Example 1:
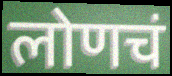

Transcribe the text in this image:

लोणचं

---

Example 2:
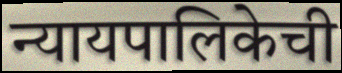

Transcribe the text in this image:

न्यायपालिकेची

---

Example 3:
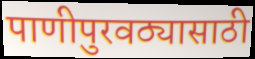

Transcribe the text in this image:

पाणीपुरवठ्यासाठी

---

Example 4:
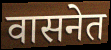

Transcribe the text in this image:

वासनेत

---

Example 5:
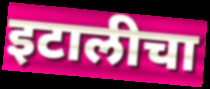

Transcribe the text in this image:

इटालीचा